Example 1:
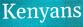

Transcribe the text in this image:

Kenyans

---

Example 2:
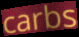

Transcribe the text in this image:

carbs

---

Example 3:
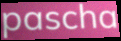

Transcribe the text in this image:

pascha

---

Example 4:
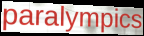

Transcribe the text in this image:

paralympics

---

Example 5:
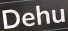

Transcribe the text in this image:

Dehu